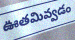
ఊతమివ్వడం